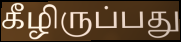
கீழிருப்பது